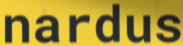
nardus